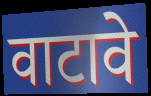
वाटावे